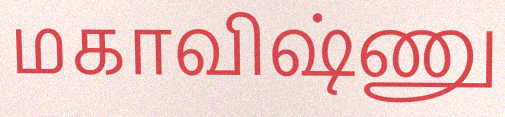
மகாவிஷ்ணு